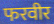
फरवीर